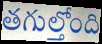
తగుల్తోంది